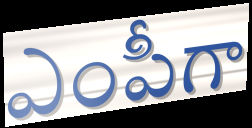
ఎంపీగా